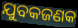
ଯୁବକଜଣକ